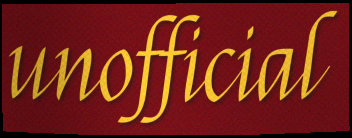
unofficial